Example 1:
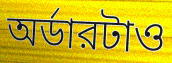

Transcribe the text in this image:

অর্ডারটাও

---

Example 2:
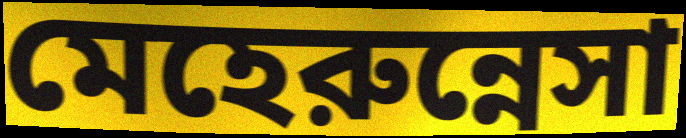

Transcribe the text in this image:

মেহেরুন্নেসা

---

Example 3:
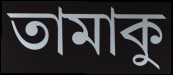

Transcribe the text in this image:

তামাকু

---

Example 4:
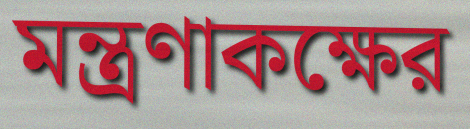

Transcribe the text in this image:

মন্ত্রণাকক্ষের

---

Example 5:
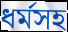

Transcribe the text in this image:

ধর্মসহ